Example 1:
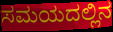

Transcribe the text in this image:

ಸಮಯದಲ್ಲಿನ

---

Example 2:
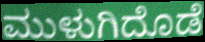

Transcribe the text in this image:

ಮುಳುಗಿದೊಡೆ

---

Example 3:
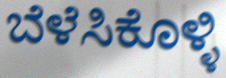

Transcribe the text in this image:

ಬೆಳೆಸಿಕೊಳ್ಳಿ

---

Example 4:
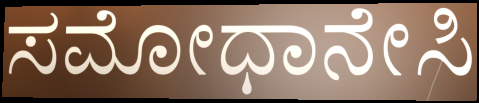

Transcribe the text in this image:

ಸಮೋಧಾನೇಸಿ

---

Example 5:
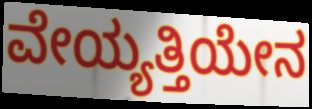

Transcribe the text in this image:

ವೇಯ್ಯತ್ತಿಯೇನ